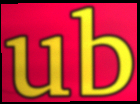
ub